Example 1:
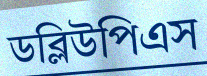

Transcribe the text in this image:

ডব্লিউপিএস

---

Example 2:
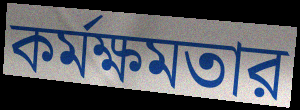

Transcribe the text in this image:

কর্মক্ষমতার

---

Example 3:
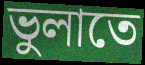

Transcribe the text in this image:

ভুলাতে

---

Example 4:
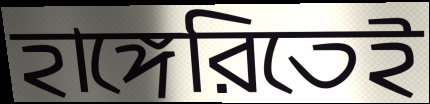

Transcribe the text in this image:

হাঙ্গেরিতেই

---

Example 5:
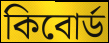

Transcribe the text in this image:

কিবোর্ড